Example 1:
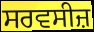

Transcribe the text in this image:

ਸਰਵਸੀਜ਼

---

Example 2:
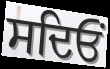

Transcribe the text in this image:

ਸਦਿਓਂ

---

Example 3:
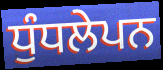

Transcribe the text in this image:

ਧੁੰਧਲੇਪਨ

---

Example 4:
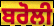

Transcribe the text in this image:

ਬਰੋਲੀ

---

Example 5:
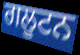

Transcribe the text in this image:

ਗਲੂਟਨ